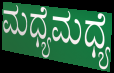
ಮಧ್ಯೆಮಧ್ಯೆ